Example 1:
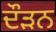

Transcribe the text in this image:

ਦੌਡ਼ਨ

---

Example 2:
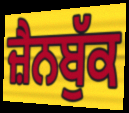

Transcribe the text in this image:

ਜ਼ੈਨਬੁੱਕ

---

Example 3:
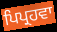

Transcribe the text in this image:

ਪਿਪ੍ਰਹਵਾ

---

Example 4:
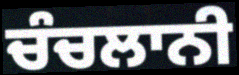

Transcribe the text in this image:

ਚੰਚਲਾਨੀ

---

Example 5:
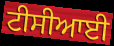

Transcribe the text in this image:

ਟੀਸੀਆਈ